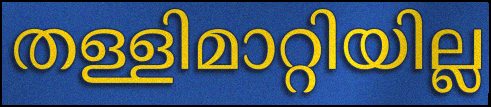
തള്ളിമാറ്റിയില്ല